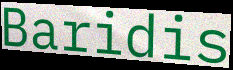
Baridis